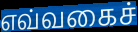
எவ்வகைச்